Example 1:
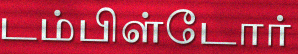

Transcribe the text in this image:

டம்பிள்டோர்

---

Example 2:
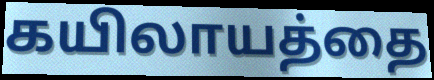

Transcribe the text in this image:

கயிலாயத்தை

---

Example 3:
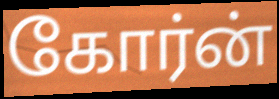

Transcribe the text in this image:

கோர்ன்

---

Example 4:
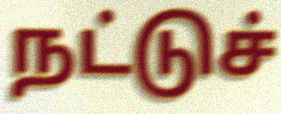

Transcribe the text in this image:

நட்டுச்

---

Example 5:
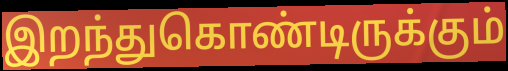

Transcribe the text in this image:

இறந்துகொண்டிருக்கும்